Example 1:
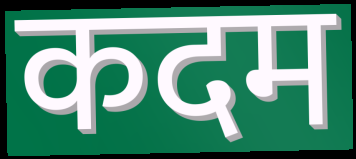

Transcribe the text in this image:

कदम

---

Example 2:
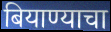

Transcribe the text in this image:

बियाण्याचा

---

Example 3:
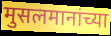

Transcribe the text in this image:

मुसलमानांच्या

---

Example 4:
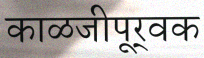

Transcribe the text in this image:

काळजीपूर्वक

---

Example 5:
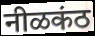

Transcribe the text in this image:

नीळकंठ